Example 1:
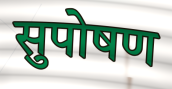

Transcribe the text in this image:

सुपोषण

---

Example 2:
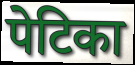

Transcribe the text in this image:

पेटिका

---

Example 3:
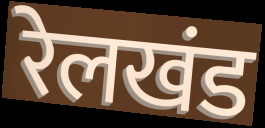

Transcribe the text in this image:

रेलखंड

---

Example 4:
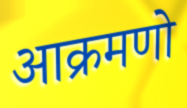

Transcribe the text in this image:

आक्रमणो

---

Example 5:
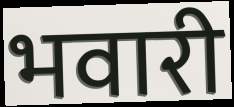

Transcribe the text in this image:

भवारी